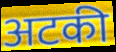
अटकी